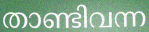
താണ്ടിവന്ന